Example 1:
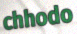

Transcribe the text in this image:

chhodo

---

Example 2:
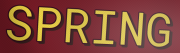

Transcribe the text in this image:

SPRING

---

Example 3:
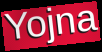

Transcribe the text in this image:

Yojna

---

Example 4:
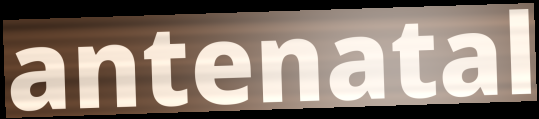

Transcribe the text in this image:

antenatal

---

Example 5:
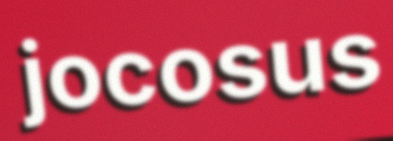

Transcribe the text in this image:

jocosus